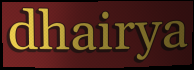
dhairya